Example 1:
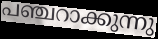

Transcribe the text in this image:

പഞ്ചറാക്കുന്നു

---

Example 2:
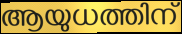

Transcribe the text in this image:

ആയുധത്തിന്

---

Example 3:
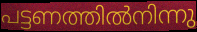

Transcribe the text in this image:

പട്ടണത്തിൽനിന്നു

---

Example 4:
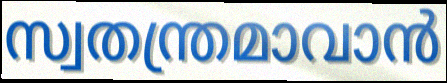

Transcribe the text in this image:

സ്വതന്ത്രമാവാൻ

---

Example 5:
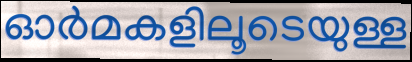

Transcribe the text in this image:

ഓർമകളിലൂടെയുള്ള